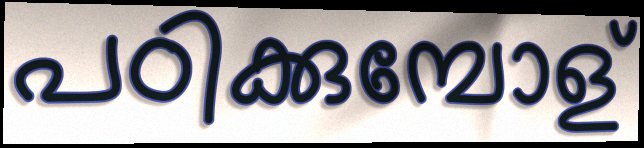
പഠിക്കുമ്പോള്